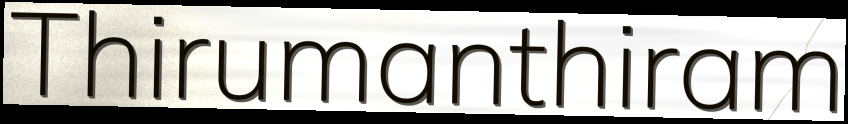
Thirumanthiram